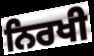
ਨਿਰਖੀ